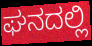
ಘನದಲ್ಲಿ